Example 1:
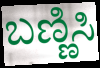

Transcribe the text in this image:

ಬಣ್ಣಿಸಿ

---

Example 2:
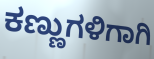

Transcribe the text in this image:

ಕಣ್ಣುಗಳಿಗಾಗಿ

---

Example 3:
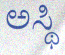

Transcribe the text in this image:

ಅಸ್ಥಿ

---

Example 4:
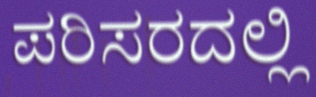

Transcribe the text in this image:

ಪರಿಸರದಲ್ಲಿ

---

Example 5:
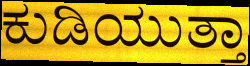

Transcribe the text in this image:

ಕುಡಿಯುತ್ತಾ